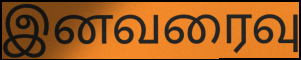
இனவரைவு